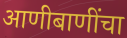
आणीबाणींचा